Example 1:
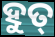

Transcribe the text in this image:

ହୁତ୍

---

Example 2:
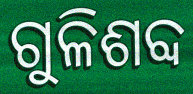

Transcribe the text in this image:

ଗୁଳିଶବ୍ଦ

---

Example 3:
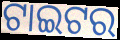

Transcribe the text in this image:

ଟାଇଟର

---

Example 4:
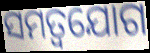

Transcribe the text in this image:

ସମତ୍ୱଯୋଗ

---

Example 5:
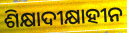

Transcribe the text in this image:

ଶିକ୍ଷାଦୀକ୍ଷାହୀନ